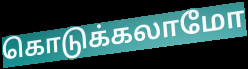
கொடுக்கலாமோ